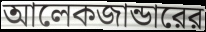
আলেকজান্ডারের